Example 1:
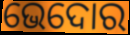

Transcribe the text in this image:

ଭେଦୋର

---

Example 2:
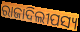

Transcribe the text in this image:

ରାଜାଦିଲୀପସ୍ୟ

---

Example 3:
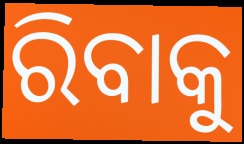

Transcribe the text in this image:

ରିବାକୁ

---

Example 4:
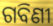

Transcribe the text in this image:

ଗବିଣୀ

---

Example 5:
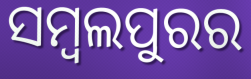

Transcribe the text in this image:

ସମ୍ୱଲପୁରର